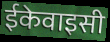
ईकेवाइसी